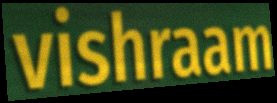
vishraam